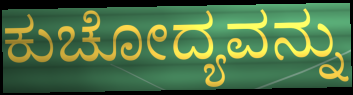
ಕುಚೋದ್ಯವನ್ನು